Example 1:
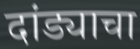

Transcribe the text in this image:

दांड्याचा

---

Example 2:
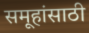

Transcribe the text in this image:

समूहांसाठी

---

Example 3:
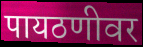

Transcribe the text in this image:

पायठणीवर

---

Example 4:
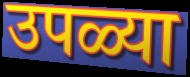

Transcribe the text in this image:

उपळ्या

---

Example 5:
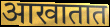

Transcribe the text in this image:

आखातात